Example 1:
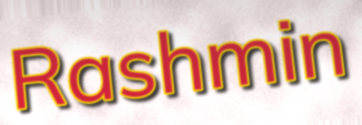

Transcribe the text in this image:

Rashmin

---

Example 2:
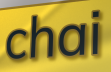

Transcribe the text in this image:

chai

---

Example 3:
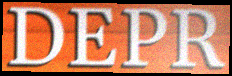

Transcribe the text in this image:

DEPR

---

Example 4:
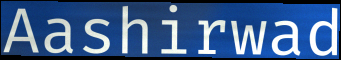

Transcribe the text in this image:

Aashirwad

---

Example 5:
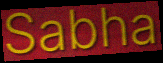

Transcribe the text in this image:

Sabha